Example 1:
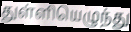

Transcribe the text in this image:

துள்ளியெழுந்து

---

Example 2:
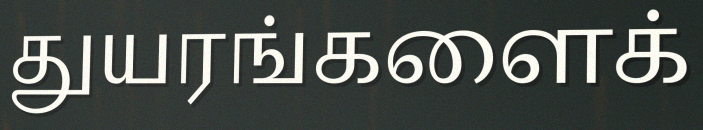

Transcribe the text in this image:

துயரங்களைக்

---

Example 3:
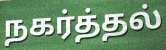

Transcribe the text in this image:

நகர்த்தல்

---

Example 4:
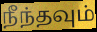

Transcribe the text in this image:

நீந்தவும்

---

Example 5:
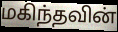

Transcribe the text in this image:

மகிந்தவின்